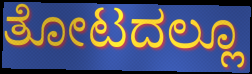
ತೋಟದಲ್ಲೂ